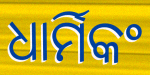
ଧାର୍ମିକଂ